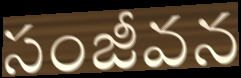
సంజీవన